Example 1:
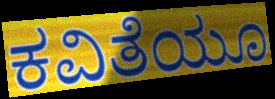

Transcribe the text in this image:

ಕವಿತೆಯೂ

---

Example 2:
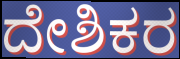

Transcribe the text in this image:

ದೇಶಿಕರ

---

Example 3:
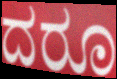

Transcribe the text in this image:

ದರೂ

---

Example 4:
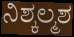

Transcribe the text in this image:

ನಿಶ್ಕಲ್ಮಶ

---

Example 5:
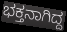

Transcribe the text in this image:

ಭಕ್ತನಾಗಿದ್ದ